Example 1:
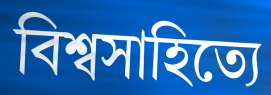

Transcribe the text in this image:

বিশ্বসাহিত্যে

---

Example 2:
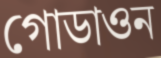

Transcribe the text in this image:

গোডাওন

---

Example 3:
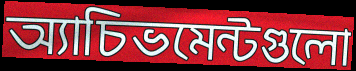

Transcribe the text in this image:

অ্যাচিভমেন্টগুলো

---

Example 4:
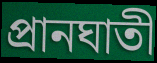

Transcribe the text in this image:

প্রানঘাতী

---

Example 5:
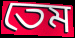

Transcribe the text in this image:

তেম